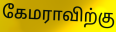
கேமராவிற்கு